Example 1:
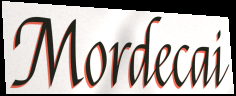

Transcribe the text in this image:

Mordecai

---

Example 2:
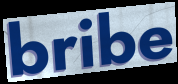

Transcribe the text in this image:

bribe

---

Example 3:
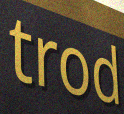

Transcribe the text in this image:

trod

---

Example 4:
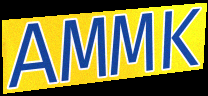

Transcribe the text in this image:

AMMK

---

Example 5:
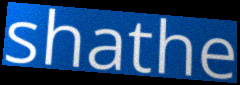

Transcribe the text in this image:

shathe